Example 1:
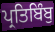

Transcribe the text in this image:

ਪ੍ਰਤਿਬਿੰਬੁ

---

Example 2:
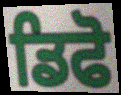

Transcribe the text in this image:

ਡਿਫੋ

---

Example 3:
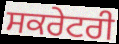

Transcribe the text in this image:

ਸਕਰੇਟਰੀ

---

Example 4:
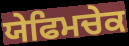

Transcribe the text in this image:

ਯੇਫਿਮਚੇਕ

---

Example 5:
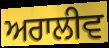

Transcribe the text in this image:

ਅਰਾਲੀਵ